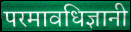
परमावधिज्ञानी